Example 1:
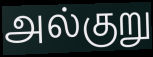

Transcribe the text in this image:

அல்குறு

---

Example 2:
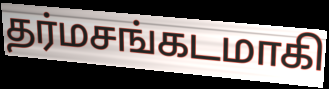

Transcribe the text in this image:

தர்மசங்கடமாகி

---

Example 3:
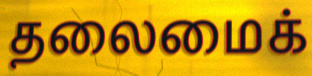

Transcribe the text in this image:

தலைமைக்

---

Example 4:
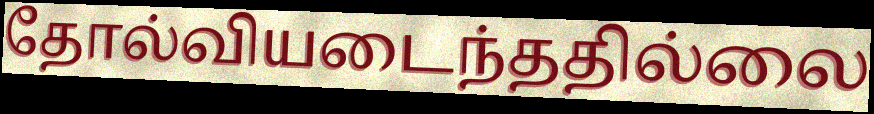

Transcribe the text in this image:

தோல்வியடைந்ததில்லை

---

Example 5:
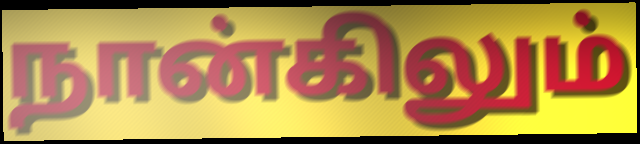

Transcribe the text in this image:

நான்கிலும்